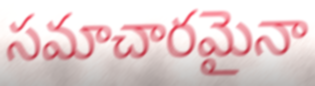
సమాచారమైనా